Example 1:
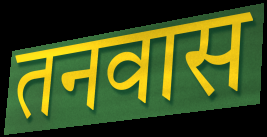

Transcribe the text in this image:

तनवास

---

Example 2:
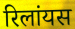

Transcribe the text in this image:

रिलांयस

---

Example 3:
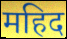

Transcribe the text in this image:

महिद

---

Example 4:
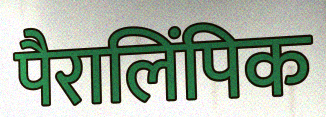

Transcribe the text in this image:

पैरालिंपिक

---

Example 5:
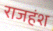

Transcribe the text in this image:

राजहंश